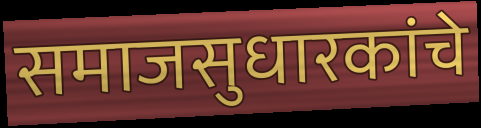
समाजसुधारकांचे